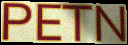
PETN